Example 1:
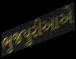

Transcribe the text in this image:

ભુજપુરીઆએ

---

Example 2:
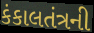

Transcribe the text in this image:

કંકાલતંત્રની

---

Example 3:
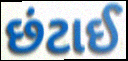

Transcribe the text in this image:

છંટાઈ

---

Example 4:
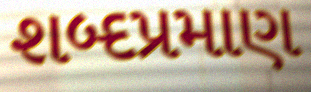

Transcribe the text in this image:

શબ્દપ્રમાણ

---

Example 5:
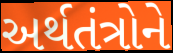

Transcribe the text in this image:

અર્થતંત્રોને